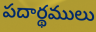
పదార్థములు